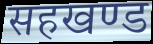
सहखण्ड